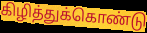
கிழித்துக்கொண்டு